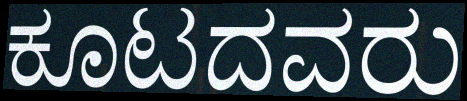
ಕೂಟದವರು